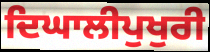
ਦਿਘਾਲੀਪੁਖੁਰੀ